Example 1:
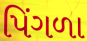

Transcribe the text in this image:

પિંગળા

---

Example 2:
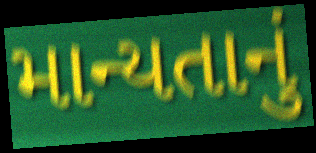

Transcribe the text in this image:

માન્યતાનું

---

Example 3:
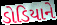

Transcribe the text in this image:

ડોડિયાને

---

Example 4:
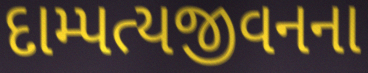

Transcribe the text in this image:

દામ્પત્યજીવનના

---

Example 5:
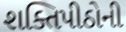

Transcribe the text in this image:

શક્તિપીઠોની